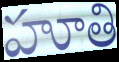
హూతి